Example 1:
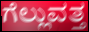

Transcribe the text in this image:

ಗೆಲ್ಲುವತ್ತ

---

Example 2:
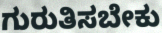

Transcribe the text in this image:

ಗುರುತಿಸಬೇಕು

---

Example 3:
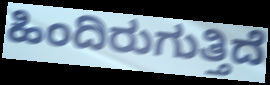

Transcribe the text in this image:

ಹಿಂದಿರುಗುತ್ತಿದೆ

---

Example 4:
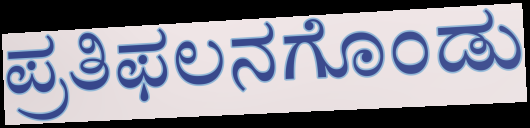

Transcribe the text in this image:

ಪ್ರತಿಫಲನಗೊಂಡು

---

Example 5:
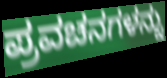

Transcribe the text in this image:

ಪ್ರವಚನಗಳನ್ನು